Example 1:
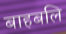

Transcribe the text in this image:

बाहबलि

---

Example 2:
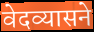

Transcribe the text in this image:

वेदव्यासने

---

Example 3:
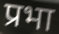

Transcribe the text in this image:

प्रभा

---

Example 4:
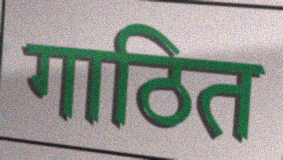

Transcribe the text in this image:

गाठित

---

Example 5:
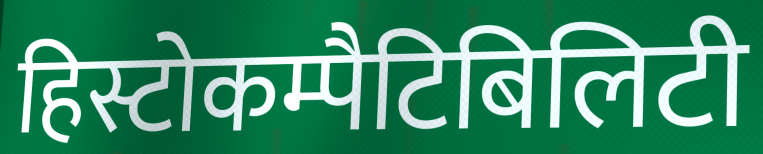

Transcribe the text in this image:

हिस्टोकम्पैटिबिलिटी